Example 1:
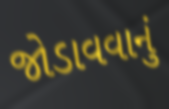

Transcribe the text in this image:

જોડાવવાનું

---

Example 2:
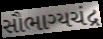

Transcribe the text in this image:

સૌભાગ્યચંદ્ર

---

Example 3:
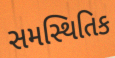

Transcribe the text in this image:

સમસ્થિતિક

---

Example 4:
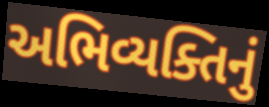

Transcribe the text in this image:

અભિવ્યક્તિનું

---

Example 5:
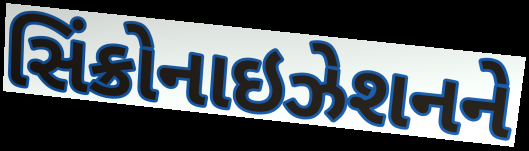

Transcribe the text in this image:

સિંક્રોનાઇઝેશનને